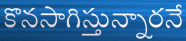
కొనసాగిస్తున్నారనే